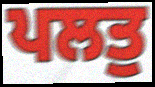
ਪਲਤੁ